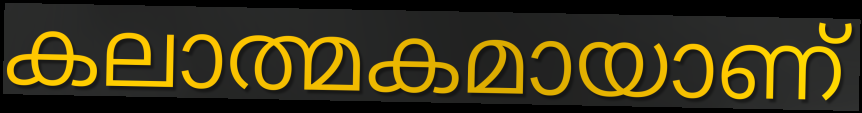
കലാത്മകമായാണ്